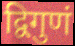
द्विगुणं